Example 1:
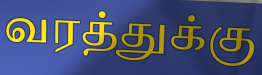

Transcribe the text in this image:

வரத்துக்கு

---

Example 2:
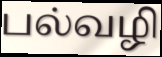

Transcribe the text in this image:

பல்வழி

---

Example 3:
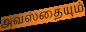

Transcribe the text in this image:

அவஸ்தையும்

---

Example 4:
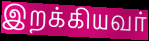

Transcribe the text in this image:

இறக்கியவர்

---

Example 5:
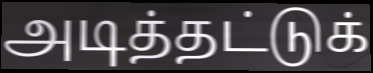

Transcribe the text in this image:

அடித்தட்டுக்